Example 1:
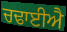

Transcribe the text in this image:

ਚਢਾਈਐ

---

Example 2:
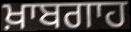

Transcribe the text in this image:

ਖ਼ਾਬਗਾਹ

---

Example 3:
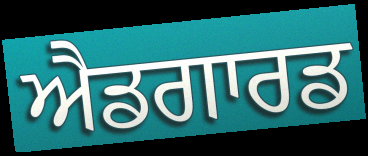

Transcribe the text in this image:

ਐਡਗਾਰਡ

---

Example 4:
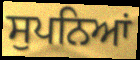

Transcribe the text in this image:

ਸੁਪਨਿਆਂ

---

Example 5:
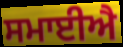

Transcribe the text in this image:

ਸਮਾਈਐ